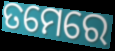
ତମେରେ